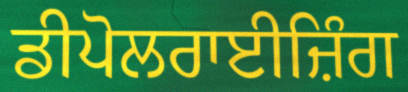
ਡੀਪੋਲਰਾਈਜ਼ਿੰਗ